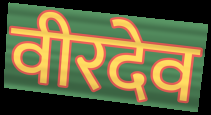
वीरदेव